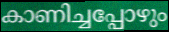
കാണിച്ചപ്പോഴും